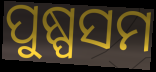
ପୁଷ୍ପସମ